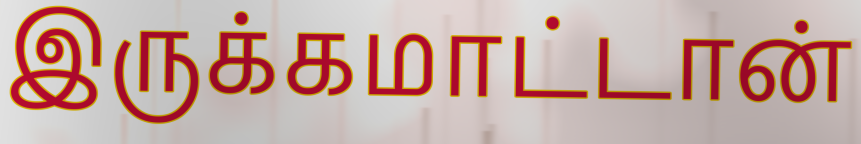
இருக்கமாட்டான்